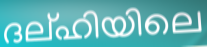
ദല്ഹിയിലെ